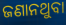
ଜଣାନଥୁବା